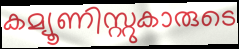
കമ്യൂണിസ്റ്റുകാരുടെ